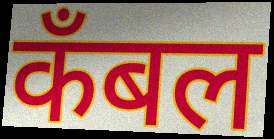
कँबल